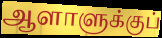
ஆளாளுக்குப்